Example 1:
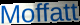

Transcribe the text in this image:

Moffatt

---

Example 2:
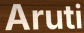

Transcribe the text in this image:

Aruti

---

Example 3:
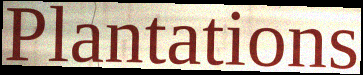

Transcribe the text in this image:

Plantations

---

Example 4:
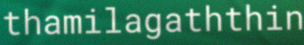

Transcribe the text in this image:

thamilagaththin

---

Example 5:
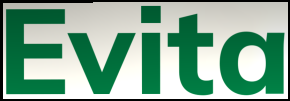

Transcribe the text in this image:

Evita